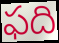
ఫది